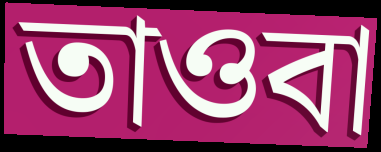
তাওবা